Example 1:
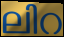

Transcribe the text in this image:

ലിറ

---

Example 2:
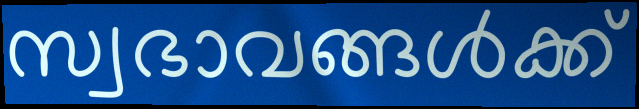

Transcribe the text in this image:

സ്വഭാവങ്ങൾക്ക്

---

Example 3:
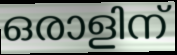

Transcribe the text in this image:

ഒരാളിന്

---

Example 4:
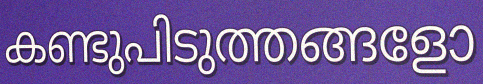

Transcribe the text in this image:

കണ്ടുപിടുത്തങ്ങളോ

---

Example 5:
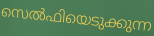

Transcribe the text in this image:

സെൽഫിയെടുക്കുന്ന